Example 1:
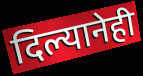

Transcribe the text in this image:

दिल्यानेही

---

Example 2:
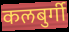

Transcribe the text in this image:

कलबुर्गी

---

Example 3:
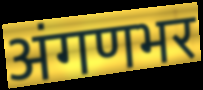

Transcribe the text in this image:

अंगणभर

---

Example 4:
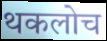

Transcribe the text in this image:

थकलोच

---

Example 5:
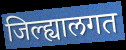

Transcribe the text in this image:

जिल्ह्यालगत